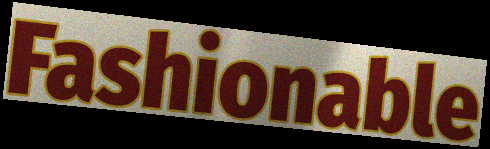
Fashionable